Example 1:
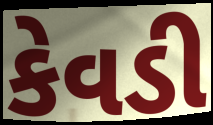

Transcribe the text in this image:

કેવડી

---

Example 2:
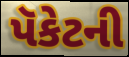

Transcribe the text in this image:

પૅકેટની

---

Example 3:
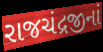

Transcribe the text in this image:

રાજચંદ્રજીનાં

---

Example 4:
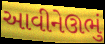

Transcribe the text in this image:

આવીનેઊભું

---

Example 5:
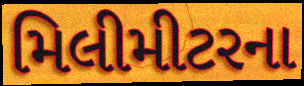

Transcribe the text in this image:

મિલીમીટરના